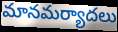
మానమర్యాదలు